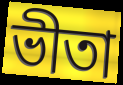
ভীতা